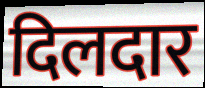
दिलदार